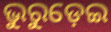
ଭୁରୁଡ଼େଇ